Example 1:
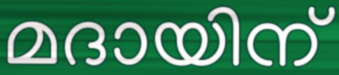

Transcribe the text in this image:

മദായിന്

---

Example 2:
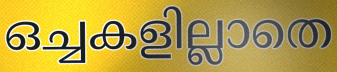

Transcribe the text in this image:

ഒച്ചകളില്ലാതെ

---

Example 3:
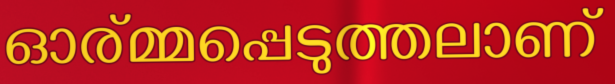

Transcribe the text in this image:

ഓര്മ്മപ്പെടുത്തലാണ്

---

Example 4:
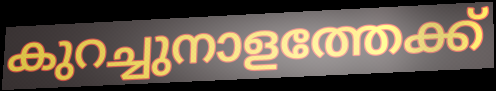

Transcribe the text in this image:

കുറച്ചുനാളത്തേക്ക്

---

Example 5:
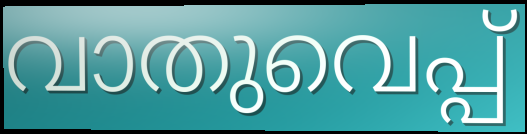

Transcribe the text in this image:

വാതുവെപ്പ്